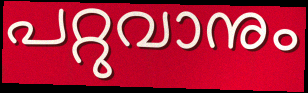
പറ്റുവാനും